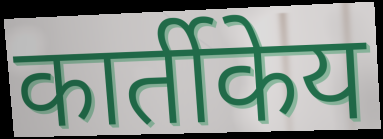
कार्तीकेय